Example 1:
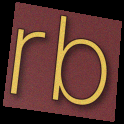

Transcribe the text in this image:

rb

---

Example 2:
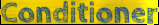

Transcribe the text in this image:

Conditioner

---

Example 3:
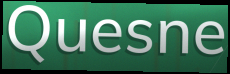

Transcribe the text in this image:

Quesne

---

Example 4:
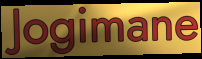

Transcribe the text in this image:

Jogimane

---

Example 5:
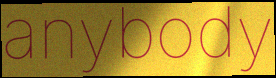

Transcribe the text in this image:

anybody